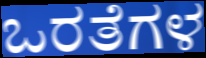
ಒರತೆಗಳ